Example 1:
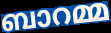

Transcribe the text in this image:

ബാറമ്മ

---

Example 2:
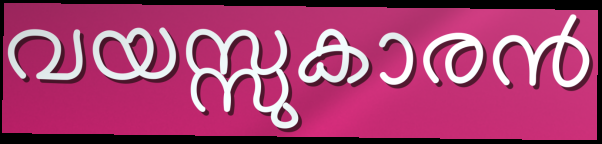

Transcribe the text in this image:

വയസ്സുകാരൻ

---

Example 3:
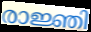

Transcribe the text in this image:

രാജ്ഞി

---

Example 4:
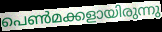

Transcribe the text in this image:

പെൺമക്കളായിരുന്നു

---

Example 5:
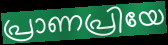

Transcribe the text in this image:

പ്രാണപ്രിയേ